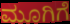
ಮೂಗಿಗೆ